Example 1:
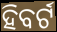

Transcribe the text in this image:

ହିବର୍ଟ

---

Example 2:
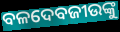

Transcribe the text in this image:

ବଳଦେବଜୀଉଙ୍କୁ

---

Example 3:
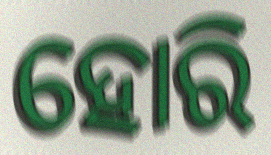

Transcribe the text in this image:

ହୋରି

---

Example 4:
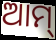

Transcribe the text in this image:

ଆମ୍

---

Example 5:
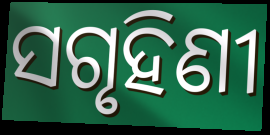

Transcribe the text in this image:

ସଗୃହିଣୀ